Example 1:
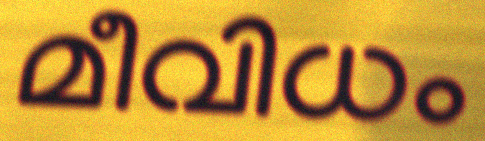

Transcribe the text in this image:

മീവിധം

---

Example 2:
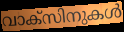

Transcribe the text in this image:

വാക്സിനുകൾ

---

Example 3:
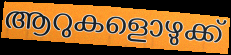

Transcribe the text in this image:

ആറുകളൊഴുക്ക്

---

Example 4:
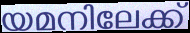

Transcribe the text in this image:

യമനിലേക്ക്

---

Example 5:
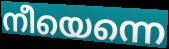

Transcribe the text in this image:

നീയെന്നെ